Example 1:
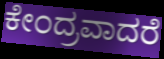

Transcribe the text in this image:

ಕೇಂದ್ರವಾದರೆ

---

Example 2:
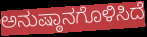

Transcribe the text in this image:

ಅನುಷ್ಠಾನಗೊಳಿಸಿದೆ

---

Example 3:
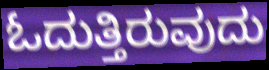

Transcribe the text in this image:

ಓದುತ್ತಿರುವುದು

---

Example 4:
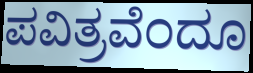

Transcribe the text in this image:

ಪವಿತ್ರವೆಂದೂ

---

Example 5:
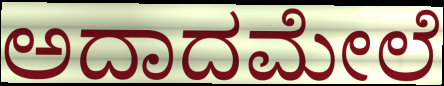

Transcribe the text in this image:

ಅದಾದಮೇಲೆ